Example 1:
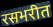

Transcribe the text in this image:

रसभरीत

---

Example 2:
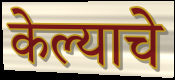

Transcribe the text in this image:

केल्याचे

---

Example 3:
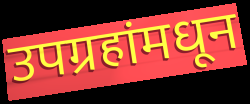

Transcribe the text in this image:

उपग्रहांमधून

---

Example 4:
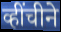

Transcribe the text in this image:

व्हींचीने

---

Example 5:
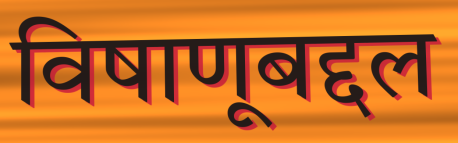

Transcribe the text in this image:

विषाणूबद्दल